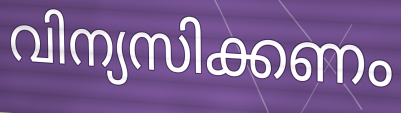
വിന്യസിക്കണം